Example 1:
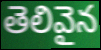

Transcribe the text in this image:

తెలివైన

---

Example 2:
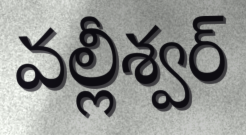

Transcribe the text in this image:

వల్లీశ్వర్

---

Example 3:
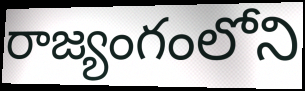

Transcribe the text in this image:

రాజ్యంగంలోని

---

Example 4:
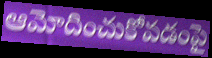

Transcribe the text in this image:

ఆమోదించుకోవడంపై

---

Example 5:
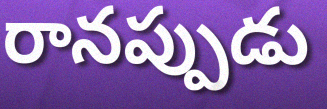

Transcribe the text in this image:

రానప్పుడు